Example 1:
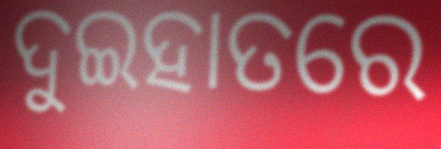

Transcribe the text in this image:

ଦୁଇହାତରେ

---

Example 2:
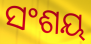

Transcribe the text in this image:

ସଂଶୟ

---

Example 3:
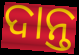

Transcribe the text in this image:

ଦାନ୍ତ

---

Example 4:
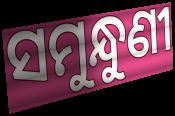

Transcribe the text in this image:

ସମୁନ୍ଧୁଣୀ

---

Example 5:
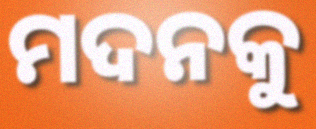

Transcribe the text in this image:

ମଦନକୁ